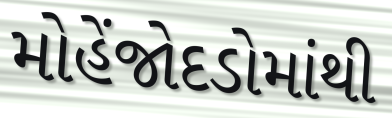
મોહેંજોદડોમાંથી